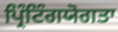
ਪ੍ਰਿੰਟਿੰਗਯੋਗਤਾ